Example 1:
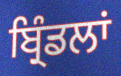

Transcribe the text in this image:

ਬ੍ਰਿੰਡਲਾਂ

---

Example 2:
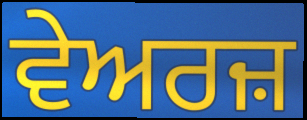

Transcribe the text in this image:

ਵੇਅਰਜ਼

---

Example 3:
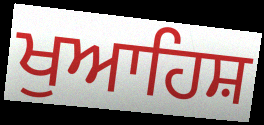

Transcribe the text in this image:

ਖੁਆਹਿਸ਼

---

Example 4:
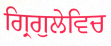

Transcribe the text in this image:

ਗ੍ਰਿਗੁਲੇਵਿਚ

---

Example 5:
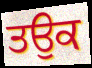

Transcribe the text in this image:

ਤਉਕ